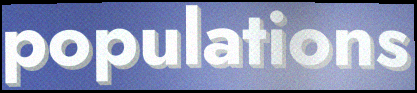
populations